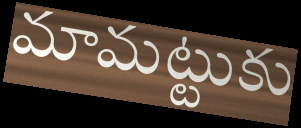
మామట్టుకు